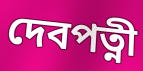
দেবপত্নী